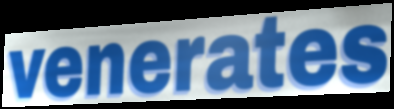
venerates